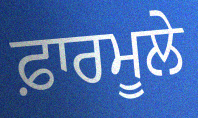
ਫ਼ਾਰਮੂਲੇ